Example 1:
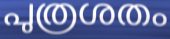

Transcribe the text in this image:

പുത്രശതം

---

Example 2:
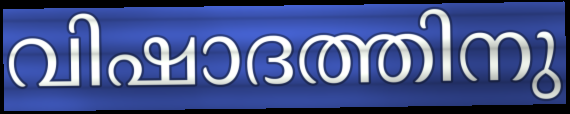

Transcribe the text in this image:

വിഷാദത്തിനു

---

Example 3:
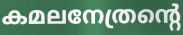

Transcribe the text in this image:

കമലനേത്രന്റെ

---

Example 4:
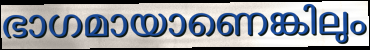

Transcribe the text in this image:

ഭാഗമായാണെങ്കിലും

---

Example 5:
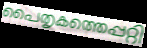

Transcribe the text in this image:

പൈതൃകത്തെപ്പറ്റി